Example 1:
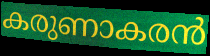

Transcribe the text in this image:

കരുണാകരൻ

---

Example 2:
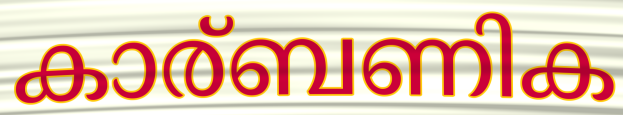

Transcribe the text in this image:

കാര്ബണിക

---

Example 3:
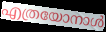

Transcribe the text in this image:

എത്രയോനാൾ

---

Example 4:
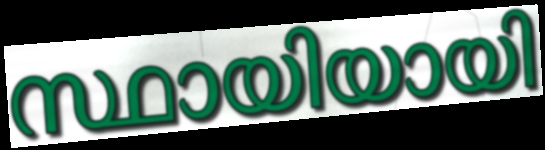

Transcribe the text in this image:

സ്ഥായിയായി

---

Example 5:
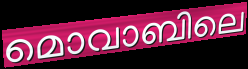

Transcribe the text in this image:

മൊവാബിലെ